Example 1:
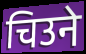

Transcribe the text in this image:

चिउने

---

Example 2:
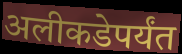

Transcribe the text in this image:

अलीकडेपर्यंत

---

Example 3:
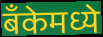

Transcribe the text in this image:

बँकेमध्ये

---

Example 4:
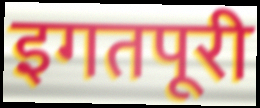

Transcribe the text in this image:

इगतपूरी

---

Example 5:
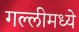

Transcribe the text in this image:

गल्लीमध्ये